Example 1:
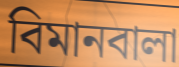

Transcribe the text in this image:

বিমানবালা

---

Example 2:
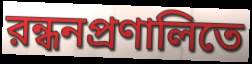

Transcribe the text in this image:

রন্ধনপ্রণালিতে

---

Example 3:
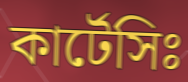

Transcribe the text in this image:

কার্টেসিঃ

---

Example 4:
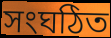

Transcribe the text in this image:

সংঘঠিত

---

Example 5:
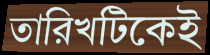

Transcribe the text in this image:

তারিখটিকেই